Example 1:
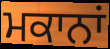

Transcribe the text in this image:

ਮਕਾਨਾਂ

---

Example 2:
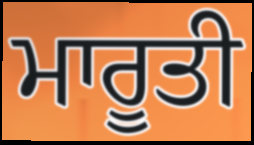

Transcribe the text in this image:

ਮਾਰੂਤੀ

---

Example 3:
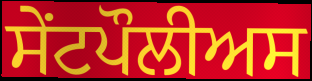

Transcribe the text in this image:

ਸੇਂਟਪੌਲੀਅਸ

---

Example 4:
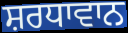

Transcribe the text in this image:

ਸ਼ਰਧਾਵਾਨ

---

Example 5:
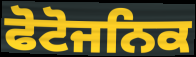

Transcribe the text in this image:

ਫੋਟੋਜਨਿਕ